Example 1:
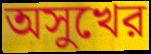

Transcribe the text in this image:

অসুখের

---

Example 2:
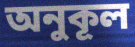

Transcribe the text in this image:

অনুকূল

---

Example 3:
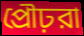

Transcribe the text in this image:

প্রৌঢ়রা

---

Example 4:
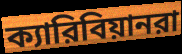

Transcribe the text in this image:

ক্যারিবিয়ানরা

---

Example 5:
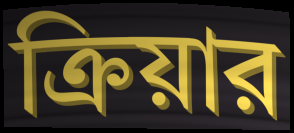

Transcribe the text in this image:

ক্রিয়ার